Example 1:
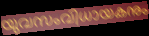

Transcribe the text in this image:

യുവസംവിധായകനും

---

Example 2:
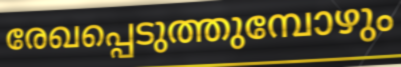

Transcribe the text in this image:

രേഖപ്പെടുത്തുമ്പോഴും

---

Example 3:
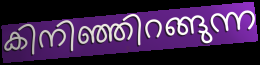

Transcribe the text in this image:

കിനിഞ്ഞിറങ്ങുന്ന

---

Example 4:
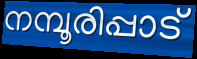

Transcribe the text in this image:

നമ്പൂരിപ്പാട്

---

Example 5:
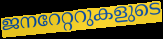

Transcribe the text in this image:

ജനറേറ്ററുകളുടെ